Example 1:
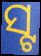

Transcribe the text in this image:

ସ୍ଟ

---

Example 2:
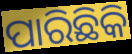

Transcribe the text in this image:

ପାରିଛିକି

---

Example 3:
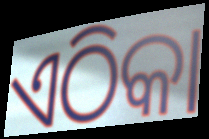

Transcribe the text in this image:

ଏଠିକା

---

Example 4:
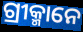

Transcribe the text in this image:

ଗ୍ରୀକ୍ମାନେ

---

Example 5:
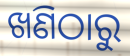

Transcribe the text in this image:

ଖଣିଠାରୁ